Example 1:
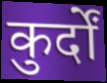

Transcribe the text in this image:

कुर्दों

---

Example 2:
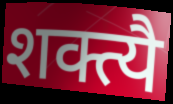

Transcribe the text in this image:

शक्त्यै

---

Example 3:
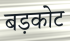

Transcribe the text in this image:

बड़कोट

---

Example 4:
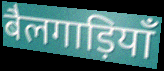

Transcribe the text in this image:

बैलगाड़ियाँ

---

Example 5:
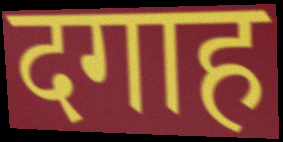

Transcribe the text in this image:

दगाह